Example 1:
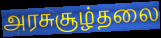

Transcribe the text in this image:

அரசுசூழ்தலை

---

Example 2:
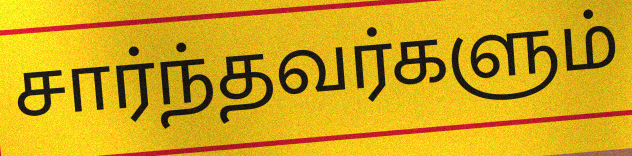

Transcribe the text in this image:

சார்ந்தவர்களும்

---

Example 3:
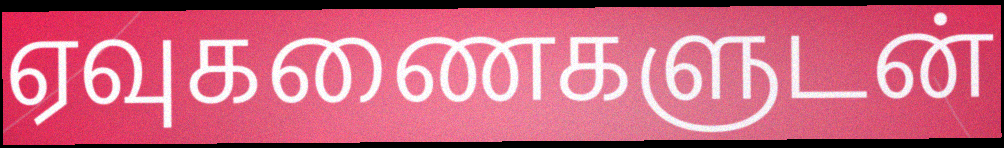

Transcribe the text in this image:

ஏவுகணைகளுடன்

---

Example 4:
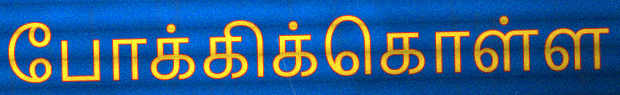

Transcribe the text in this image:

போக்கிக்கொள்ள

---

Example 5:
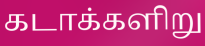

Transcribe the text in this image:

கடாக்களிறு